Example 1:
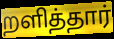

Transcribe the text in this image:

றளித்தார்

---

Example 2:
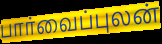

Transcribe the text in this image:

பார்வைப்புலன்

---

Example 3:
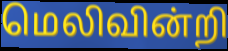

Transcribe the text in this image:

மெலிவின்றி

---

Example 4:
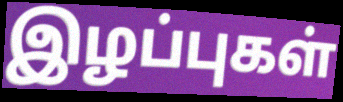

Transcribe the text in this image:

இழப்புகள்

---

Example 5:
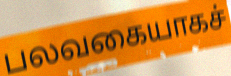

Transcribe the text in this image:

பலவகையாகச்